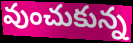
వుంచుకున్న